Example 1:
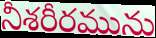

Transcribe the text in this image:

నీశరీరమును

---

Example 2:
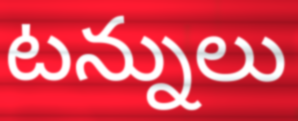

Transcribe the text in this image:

టన్నులు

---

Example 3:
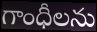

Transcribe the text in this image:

గాంధీలను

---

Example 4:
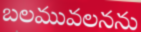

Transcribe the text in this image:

బలమువలనను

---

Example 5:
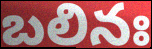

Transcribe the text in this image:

బలినః